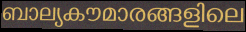
ബാല്യകൗമാരങ്ങളിലെ